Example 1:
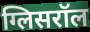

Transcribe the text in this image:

ग्लिसरॉल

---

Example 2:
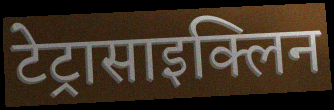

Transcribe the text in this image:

टेट्रासाइक्लिन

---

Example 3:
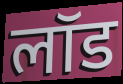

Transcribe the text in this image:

लॉड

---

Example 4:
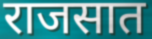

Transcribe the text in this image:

राजसात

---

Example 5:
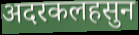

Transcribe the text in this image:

अदरकलहसुन